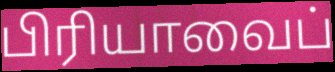
பிரியாவைப்